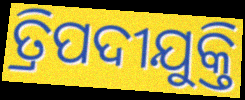
ତ୍ରିପଦୀଯୁକ୍ତି